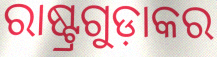
ରାଷ୍ଟ୍ରଗୁଡ଼ାକର